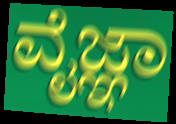
ವೈಜ್ಞಾ